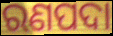
ରଣପଦା